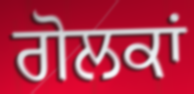
ਗੋਲਕਾਂ